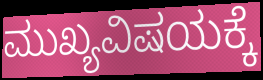
ಮುಖ್ಯವಿಷಯಕ್ಕೆ